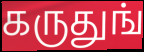
கருதுங்